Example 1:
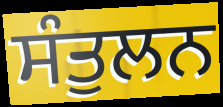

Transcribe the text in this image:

ਸੰਤੁਲਨ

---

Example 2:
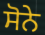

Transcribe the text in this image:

ਸੋਨੇ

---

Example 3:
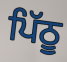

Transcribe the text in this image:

ਪਿੱਠੂ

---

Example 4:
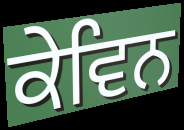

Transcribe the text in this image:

ਕੇਵਿਨ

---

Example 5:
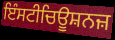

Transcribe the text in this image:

ਇੰਸਟੀਚਿਊਸ਼ਨਜ਼